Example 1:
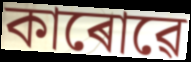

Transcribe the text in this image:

কাৰোৱে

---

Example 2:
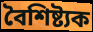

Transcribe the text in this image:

বৈশিষ্ট্যক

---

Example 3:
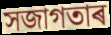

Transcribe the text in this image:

সজাগতাৰ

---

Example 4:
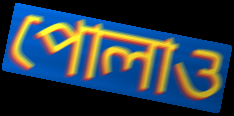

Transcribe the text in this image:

পোলাও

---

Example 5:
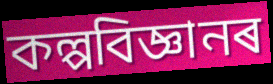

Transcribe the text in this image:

কল্পবিজ্ঞানৰ